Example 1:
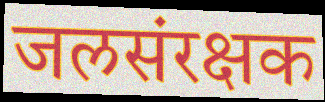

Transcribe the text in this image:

जलसंरक्षक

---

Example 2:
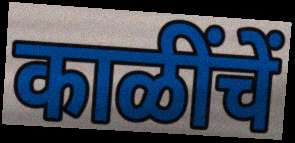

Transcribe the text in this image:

काळींचें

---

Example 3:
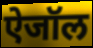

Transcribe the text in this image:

ऐजॉल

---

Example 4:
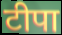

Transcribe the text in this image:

टीपा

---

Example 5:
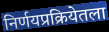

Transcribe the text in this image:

निर्णयप्रक्रियेतला